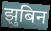
झुबिन